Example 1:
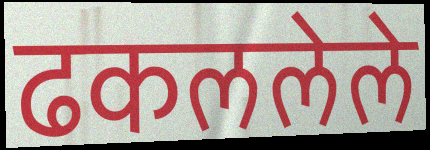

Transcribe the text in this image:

ढकललेले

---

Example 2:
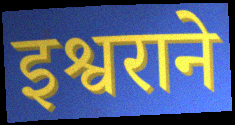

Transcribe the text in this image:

इश्वराने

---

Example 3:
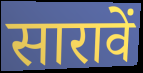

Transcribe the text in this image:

सारावें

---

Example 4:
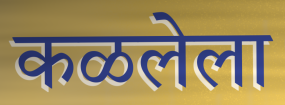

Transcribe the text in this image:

कळलेला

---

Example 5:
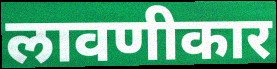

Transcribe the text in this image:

लावणीकार